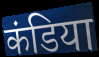
कंडिया